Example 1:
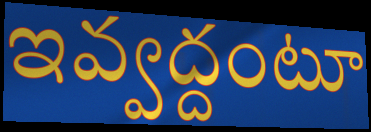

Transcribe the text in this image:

ఇవ్వద్దంటూ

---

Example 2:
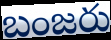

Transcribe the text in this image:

బంజరు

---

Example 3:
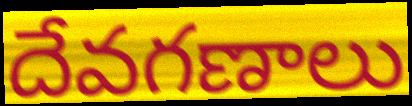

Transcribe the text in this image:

దేవగణాలు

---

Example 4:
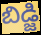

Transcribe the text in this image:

బిడ్జి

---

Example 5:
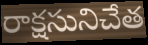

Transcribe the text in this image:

రాక్షసునిచేత